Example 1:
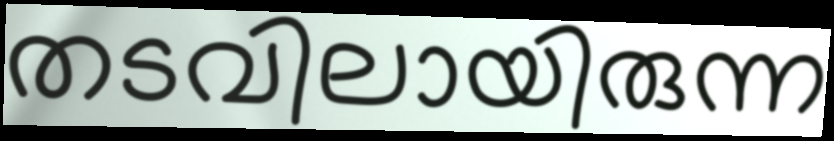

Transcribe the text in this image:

തടവിലായിരുന്ന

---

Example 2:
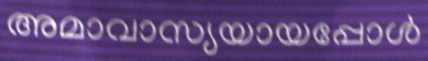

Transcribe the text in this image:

അമാവാസ്യയായപ്പോൾ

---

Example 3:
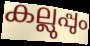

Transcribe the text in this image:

കല്ലുപ്പും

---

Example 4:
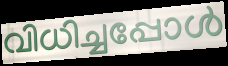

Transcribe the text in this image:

വിധിച്ചപ്പോൾ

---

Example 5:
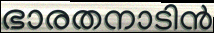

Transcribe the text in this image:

ഭാരതനാടിൻ